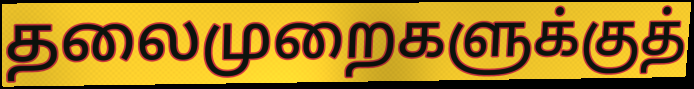
தலைமுறைகளுக்குத்